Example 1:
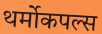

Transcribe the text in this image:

थर्मोकपल्स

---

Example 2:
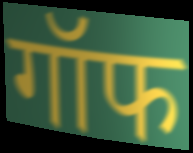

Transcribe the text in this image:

गॉफ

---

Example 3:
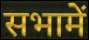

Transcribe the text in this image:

सभामें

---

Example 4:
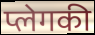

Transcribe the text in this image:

प्लेगकी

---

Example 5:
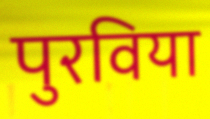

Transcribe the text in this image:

पुरविया